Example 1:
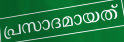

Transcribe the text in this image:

പ്രസാദമായത്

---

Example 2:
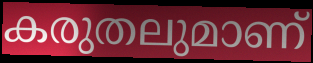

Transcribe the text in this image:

കരുതലുമാണ്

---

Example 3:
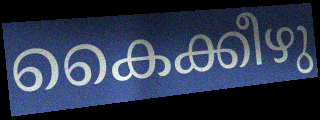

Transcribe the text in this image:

കൈക്കീഴു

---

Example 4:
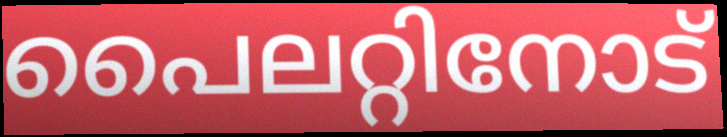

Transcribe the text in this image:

പൈലറ്റിനോട്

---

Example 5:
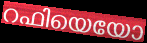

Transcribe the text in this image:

റഫിയെയോ